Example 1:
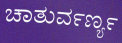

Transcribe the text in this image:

ಚಾತುರ್ವರ್ಣ್ಯ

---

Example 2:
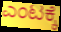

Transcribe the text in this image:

ಎಂಟಕ್ಕೆ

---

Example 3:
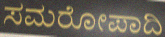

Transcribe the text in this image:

ಸಮರೋಪಾದಿ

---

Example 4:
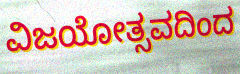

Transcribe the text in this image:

ವಿಜಯೋತ್ಸವದಿಂದ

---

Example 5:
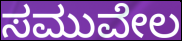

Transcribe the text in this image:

ಸಮುವೇಲ